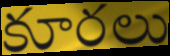
కూరలు